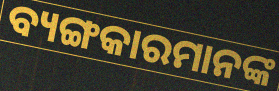
ବ୍ୟଙ୍ଗକାରମାନଙ୍କ